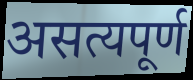
असत्यपूर्ण